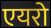
एयरो